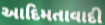
આદિમતાવાદી